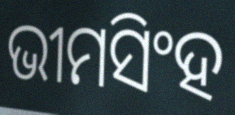
ଭୀମସିଂହ